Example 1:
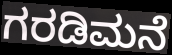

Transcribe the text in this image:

ಗರಡಿಮನೆ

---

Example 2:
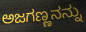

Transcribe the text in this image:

ಅಜಗಣ್ಣನನ್ನು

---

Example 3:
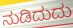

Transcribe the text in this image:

ನುಡಿದುದು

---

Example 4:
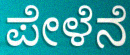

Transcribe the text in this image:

ಪೇಳೆನೆ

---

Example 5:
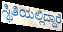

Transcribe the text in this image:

ಸ್ಥಿತಿಯಲ್ಲಿದ್ದಾರೆ